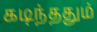
கடிந்ததும்